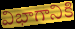
విభాగానికి